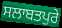
ਸਲਾਬਤਪੁਰੇ